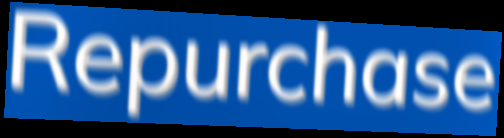
Repurchase